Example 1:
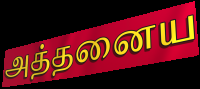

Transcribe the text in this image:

அத்தனைய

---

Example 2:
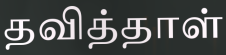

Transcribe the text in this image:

தவித்தாள்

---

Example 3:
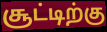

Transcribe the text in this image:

சூட்டிற்கு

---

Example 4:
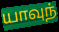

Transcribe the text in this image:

யாவுந்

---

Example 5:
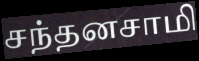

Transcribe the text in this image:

சந்தனசாமி